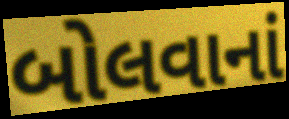
બોલવાનાં